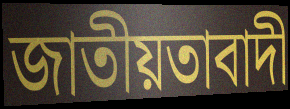
জাতীয়তাবাদী